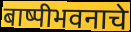
बाष्पीभवनाचे